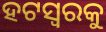
ହଟସ୍ଵରକୁ